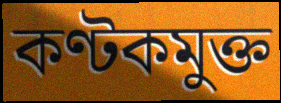
কণ্টকমুক্ত